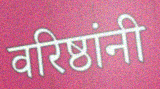
वरिष्ठांनी